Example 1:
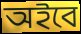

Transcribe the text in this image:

অইবে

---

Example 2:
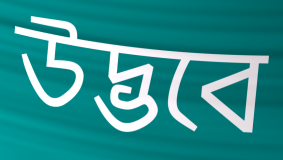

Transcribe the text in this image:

উদ্ভবে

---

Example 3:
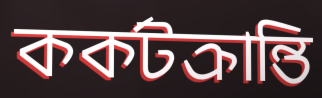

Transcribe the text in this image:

কর্কটক্রান্তি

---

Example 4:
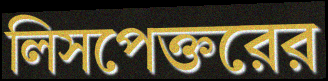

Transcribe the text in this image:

লিসপেক্তরের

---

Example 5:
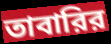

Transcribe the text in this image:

তাবারির